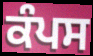
ਕੰਪਸ